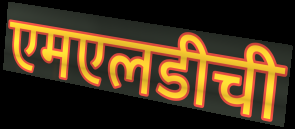
एमएलडीची